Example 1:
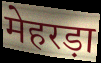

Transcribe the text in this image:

मेहरड़ा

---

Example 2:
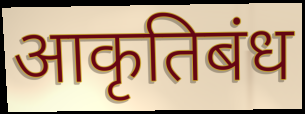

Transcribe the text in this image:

आकृतिबंध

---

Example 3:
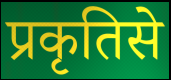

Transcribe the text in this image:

प्रकृतिसे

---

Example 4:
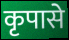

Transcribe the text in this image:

कृपासे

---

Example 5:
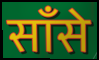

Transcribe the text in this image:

साँसे